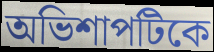
অভিশাপটিকে